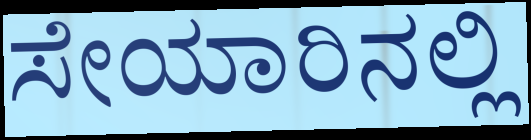
ಸೇಯಾರಿನಲ್ಲಿ